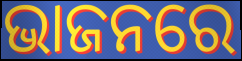
ଭାଜନରେ